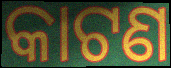
କାଟଣ